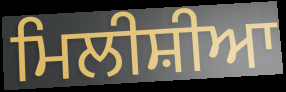
ਮਿਲੀਸ਼ੀਆ